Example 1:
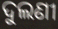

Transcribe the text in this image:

ଦୁଲଣୀ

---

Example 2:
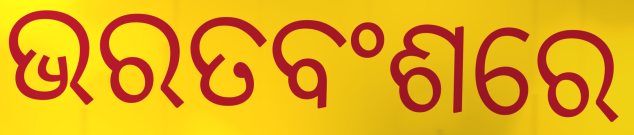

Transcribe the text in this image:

ଭରତବଂଶରେ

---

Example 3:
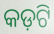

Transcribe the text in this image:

କଡ଼ଟି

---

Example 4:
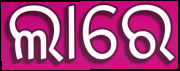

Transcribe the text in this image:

ଲାରେ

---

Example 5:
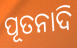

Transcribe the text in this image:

ପୂତନାଦି